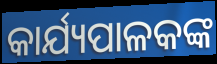
କାର୍ଯ୍ୟପାଳକଙ୍କ